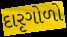
દારૃગોળો